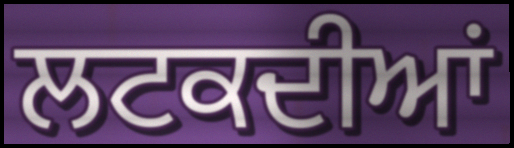
ਲਟਕਦੀਆਂ